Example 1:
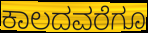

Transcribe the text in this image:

ಕಾಲದವರೆಗೂ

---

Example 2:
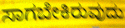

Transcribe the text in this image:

ಸಾಗಬೇಕಿರುವುದು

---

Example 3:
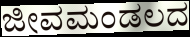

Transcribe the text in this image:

ಜೀವಮಂಡಲದ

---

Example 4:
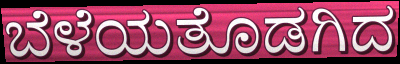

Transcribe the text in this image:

ಬೆಳೆಯತೊಡಗಿದ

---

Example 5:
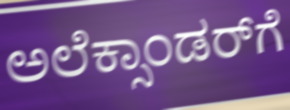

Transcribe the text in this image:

ಅಲೆಕ್ಸಾಂಡರ್‌ಗೆ